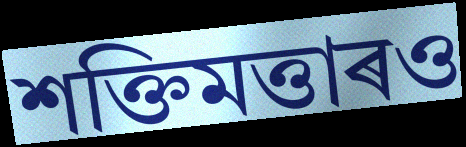
শক্তিমত্তাৰও